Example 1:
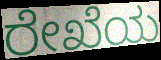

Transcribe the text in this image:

ರೇಖೆಯ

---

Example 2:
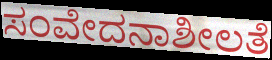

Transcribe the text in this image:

ಸಂವೇದನಾಶೀಲತೆ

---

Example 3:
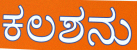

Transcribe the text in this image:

ಕಲಶನು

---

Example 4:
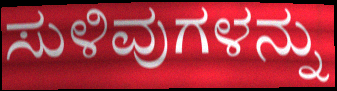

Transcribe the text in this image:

ಸುಳಿವುಗಳನ್ನು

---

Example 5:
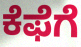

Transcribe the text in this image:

ಕೆಫೆಗೆ